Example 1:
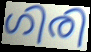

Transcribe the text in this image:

ഗിരി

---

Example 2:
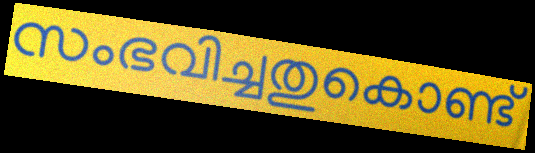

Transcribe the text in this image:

സംഭവിച്ചതുകൊണ്ട്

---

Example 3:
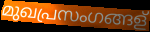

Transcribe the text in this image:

മുഖപ്രസംഗങ്ങള്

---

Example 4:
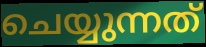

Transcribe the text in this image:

ചെയ്യുന്നത്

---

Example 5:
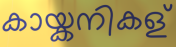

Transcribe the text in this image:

കായ്കനികള്